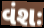
વંશઃ